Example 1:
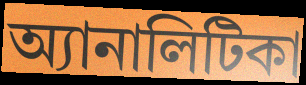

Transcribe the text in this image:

অ্যানালিটিকা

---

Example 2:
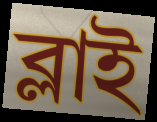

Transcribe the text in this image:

ব্লাই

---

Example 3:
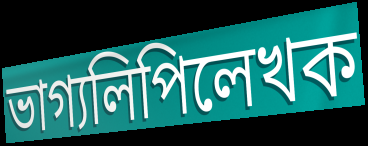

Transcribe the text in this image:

ভাগ্যলিপিলেখক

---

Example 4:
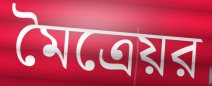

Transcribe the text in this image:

মৈত্রেয়র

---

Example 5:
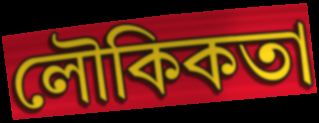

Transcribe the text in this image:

লৌকিকতা